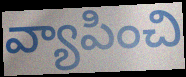
వ్యాపించి